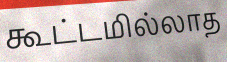
கூட்டமில்லாத